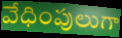
వేధింపులుగా